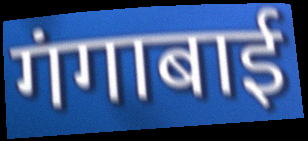
गंगाबाई